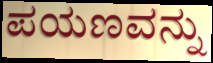
ಪಯಣವನ್ನು